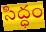
సిద్ధం